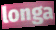
longa